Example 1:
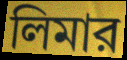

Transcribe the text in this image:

লিমার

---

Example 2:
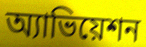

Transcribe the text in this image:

অ্যাভিয়েশন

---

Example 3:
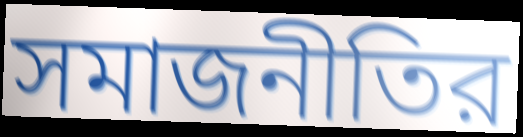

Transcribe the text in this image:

সমাজনীতির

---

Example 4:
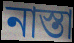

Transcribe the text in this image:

নাস্তা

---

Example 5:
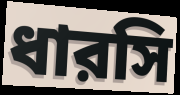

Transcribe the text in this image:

ধারসি